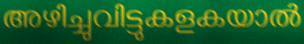
അഴിച്ചുവിട്ടുകളകയാൽ